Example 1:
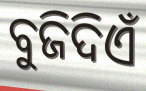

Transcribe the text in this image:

ବୁଜିଦିଏଁ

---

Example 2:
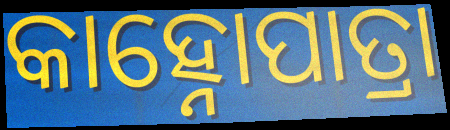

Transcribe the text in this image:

କାହ୍ନୋପାତ୍ରା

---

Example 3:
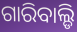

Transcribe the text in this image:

ଗାରିବାଲ୍ଡି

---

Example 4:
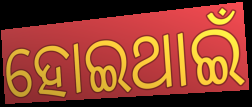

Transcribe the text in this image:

ହୋଇଥାଇଁ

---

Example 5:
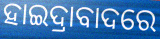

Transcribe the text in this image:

ହାଇଦ୍ରାବାଦରେ